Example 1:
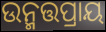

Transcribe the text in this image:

ଉନ୍ମତ୍ତପ୍ରାୟ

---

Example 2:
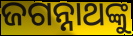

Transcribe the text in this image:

ଜଗନ୍ନାଥଙ୍କୁ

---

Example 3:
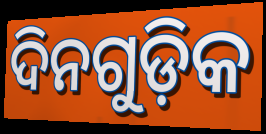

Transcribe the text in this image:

ଦିନଗୁଡ଼ିକ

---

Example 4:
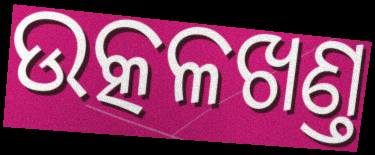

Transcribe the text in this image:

ଉତ୍କଳଖଣ୍ତ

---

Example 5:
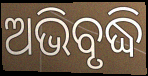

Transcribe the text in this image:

ଅଭିବୃଦ୍ଧି